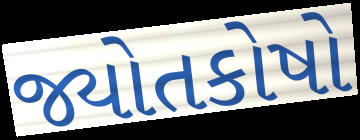
જ્યોતકોષો